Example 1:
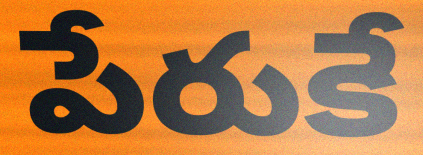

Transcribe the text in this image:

పేరుకే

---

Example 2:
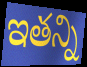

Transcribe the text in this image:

ఇతన్ని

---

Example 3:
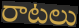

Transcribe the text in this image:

రాటలు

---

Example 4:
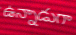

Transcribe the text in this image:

ఉన్నాడుగా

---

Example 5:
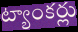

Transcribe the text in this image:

ట్యాంకర్లు